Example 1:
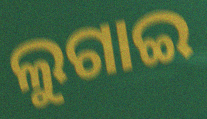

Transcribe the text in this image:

ଲୁଗାଇ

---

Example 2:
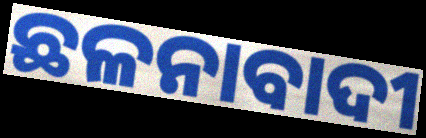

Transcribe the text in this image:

ଛଳନାବାଦୀ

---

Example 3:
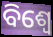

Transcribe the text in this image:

ବିଶ୍ଵେ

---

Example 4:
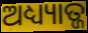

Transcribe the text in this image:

ଅଧ୍ୟ୍ୟାତ୍ଜ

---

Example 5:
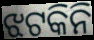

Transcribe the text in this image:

ଝଟକିନି